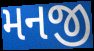
મનજી